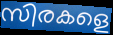
സിരകളെ